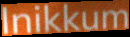
Inikkum